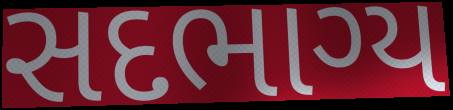
સદભાગ્ય